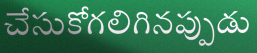
చేసుకోగలిగినప్పుడు